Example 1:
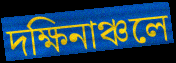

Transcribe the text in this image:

দক্ষিনাঞ্চলে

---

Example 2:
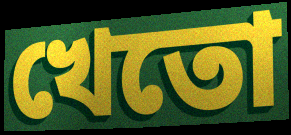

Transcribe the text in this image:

খেতো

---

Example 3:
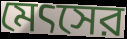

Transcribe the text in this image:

মেৎসের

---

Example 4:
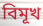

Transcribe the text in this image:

বিমূখ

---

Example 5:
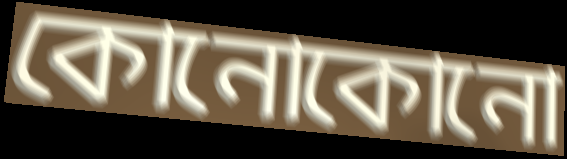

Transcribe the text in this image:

কোনোকোনো